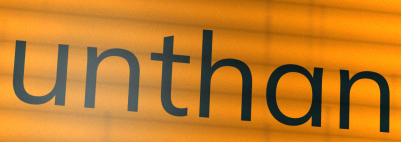
unthan